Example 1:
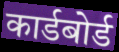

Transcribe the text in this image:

कार्डबोर्ड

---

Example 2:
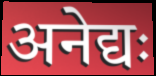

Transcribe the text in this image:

अनेद्यः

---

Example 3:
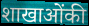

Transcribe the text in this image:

शाखाओंकी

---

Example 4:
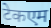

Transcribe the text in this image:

टेकएम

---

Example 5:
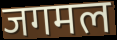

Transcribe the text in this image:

जगमल